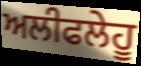
ਅਲੀਫਲੇਹੂ